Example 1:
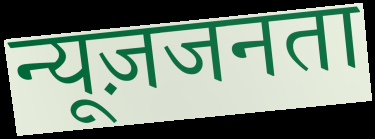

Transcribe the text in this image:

न्यूज़जनता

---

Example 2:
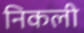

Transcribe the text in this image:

निकली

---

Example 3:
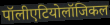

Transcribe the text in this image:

पॉलीएटियोलॉजिकल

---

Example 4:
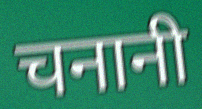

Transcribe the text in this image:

चनानी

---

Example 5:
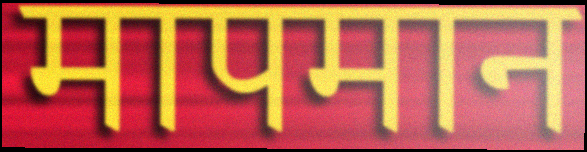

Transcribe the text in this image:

मापमान